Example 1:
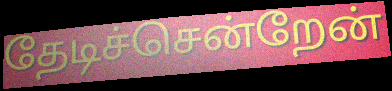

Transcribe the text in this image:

தேடிச்சென்றேன்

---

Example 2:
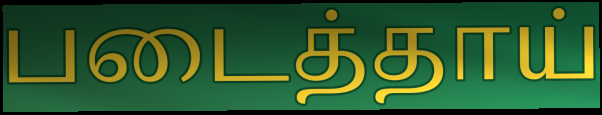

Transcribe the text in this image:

படைத்தாய்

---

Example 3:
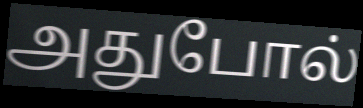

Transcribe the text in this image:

அதுபோல்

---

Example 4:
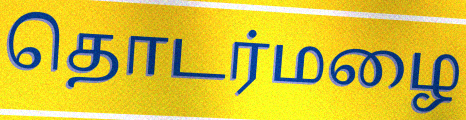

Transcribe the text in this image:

தொடர்மழை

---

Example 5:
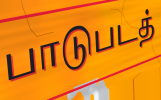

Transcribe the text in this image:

பாடுபடத்